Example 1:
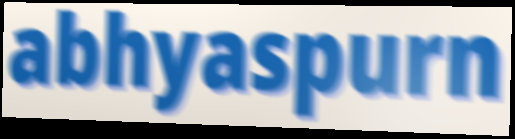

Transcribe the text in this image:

abhyaspurn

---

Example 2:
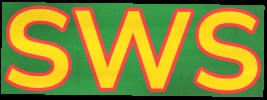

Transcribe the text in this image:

SWS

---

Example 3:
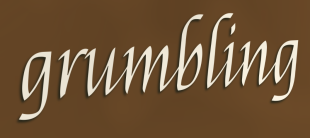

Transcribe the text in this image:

grumbling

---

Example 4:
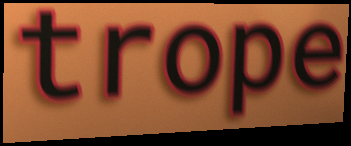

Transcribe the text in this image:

trope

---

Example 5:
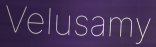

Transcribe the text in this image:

Velusamy